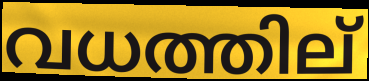
വധത്തില്